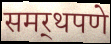
समर्थपणे